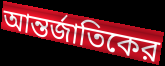
আন্তর্জাতিকের